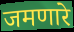
जमणारे